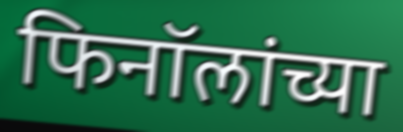
फिनॉलांच्या